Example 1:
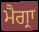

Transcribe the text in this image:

ਮੈਗ੍ਰਾ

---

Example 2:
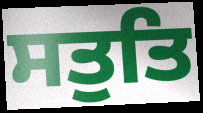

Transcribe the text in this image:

ਸਤੁਤਿ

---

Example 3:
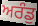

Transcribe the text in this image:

ਅਰੰਡੁ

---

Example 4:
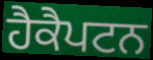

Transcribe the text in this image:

ਹੈਕੈਪਟਨ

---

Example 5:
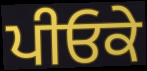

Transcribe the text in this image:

ਪੀਓਕੇ